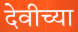
देवीच्या